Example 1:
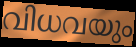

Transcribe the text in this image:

വിധവയും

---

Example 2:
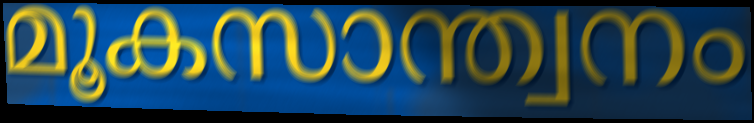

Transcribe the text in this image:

മൂകസാന്ത്വനം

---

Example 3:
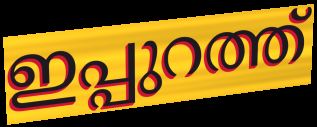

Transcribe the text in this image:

ഇപ്പുറത്ത്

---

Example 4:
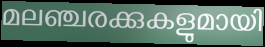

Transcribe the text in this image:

മലഞ്ചരക്കുകളുമായി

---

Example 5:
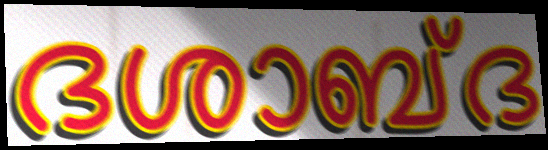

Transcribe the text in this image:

ദശാബ്ദ